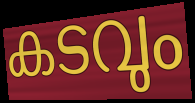
കടവും